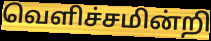
வெளிச்சமின்றி